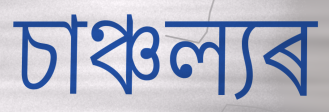
চাঞ্চল্যৰ